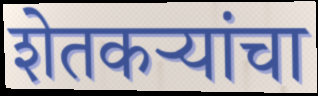
शेतकर्‍यांचा